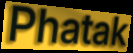
Phatak